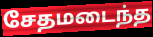
சேதமடைந்த